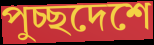
পুচ্ছদেশে